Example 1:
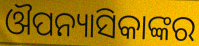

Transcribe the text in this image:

ଔପନ୍ୟାସିକାଙ୍କର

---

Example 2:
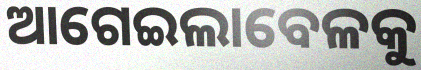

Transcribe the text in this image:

ଆଗେଇଲାବେଳକୁ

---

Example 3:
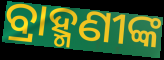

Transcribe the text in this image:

ବ୍ରାହ୍ମଣୀଙ୍କ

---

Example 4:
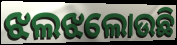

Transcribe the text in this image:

ଝଲଝଲୋଉଛି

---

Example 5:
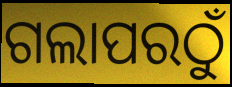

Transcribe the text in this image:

ଗଲାପରଠୁଁ